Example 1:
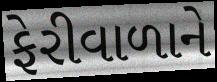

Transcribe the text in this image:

ફેરીવાળાને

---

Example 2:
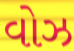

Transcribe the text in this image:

વોઝ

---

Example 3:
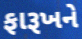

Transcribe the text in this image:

ફારૂખને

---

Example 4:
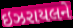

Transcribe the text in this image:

ઇઝરાયલને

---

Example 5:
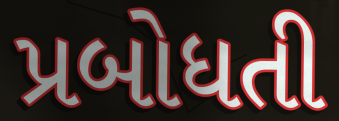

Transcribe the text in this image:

પ્રબોધતી